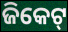
ଜିକେଟ୍